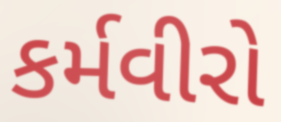
કર્મવીરો